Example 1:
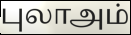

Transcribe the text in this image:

புலாஅம்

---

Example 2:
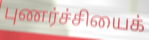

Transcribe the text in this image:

புணர்ச்சியைக்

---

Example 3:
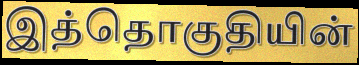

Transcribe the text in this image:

இத்தொகுதியின்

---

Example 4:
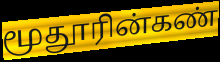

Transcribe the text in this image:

மூதூரின்கண்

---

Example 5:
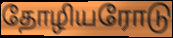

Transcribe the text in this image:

தோழியரோடு